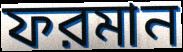
ফরমান